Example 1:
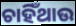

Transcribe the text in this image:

ଚାହିଁଥାଉ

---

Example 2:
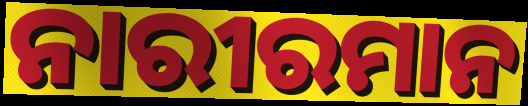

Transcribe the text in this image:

ନାରୀରମାନ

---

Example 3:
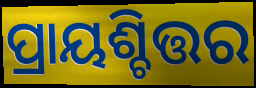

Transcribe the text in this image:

ପ୍ରାୟଶ୍ଚିତ୍ତର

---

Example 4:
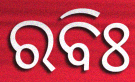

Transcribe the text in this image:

ରବିଃ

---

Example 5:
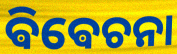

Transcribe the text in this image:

ଵିଵେଚନା